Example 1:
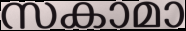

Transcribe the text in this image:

സകാമാ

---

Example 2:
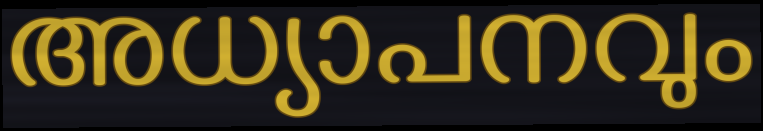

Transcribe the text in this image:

അധ്യാപനവും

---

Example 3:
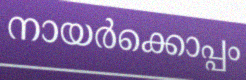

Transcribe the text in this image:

നായർക്കൊപ്പം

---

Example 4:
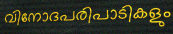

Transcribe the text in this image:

വിനോദപരിപാടികളും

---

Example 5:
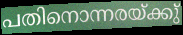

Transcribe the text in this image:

പതിനൊന്നരയ്ക്കു്